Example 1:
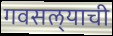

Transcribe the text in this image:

गवसल्याची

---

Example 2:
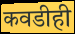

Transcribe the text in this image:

कवडीही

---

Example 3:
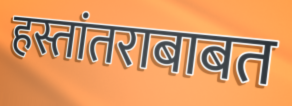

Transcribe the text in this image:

हस्तांतराबाबत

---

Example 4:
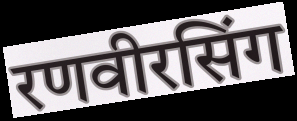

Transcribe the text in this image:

रणवीरसिंग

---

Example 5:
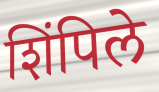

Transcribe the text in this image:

शिंपिले